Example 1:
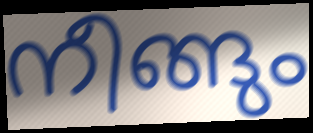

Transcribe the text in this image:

നീങ്ങും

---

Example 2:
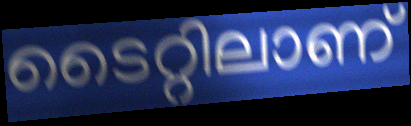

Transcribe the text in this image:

ടൈറ്റിലാണ്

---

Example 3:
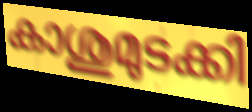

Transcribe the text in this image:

കാശുമുടക്കി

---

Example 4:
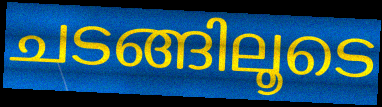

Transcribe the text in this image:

ചടങ്ങിലൂടെ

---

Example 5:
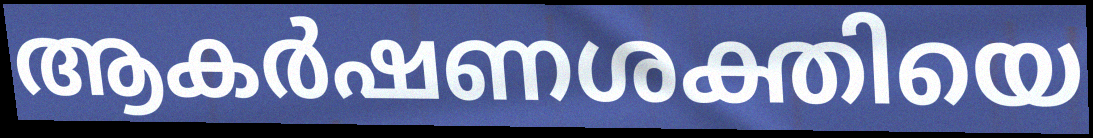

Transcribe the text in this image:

ആകർഷണശക്തിയെ